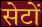
सेटों